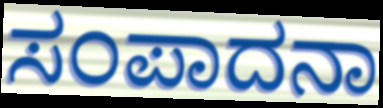
ಸಂಪಾದನಾ